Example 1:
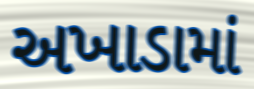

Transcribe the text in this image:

અખાડામાં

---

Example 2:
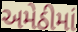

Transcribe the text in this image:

અમેઠીમાં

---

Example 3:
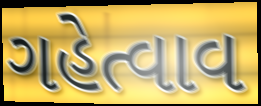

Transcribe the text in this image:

ગહેત્વાવ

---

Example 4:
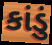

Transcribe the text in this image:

કાંડું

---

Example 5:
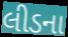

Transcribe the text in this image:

લીડના